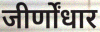
जीर्णोंधार